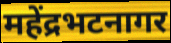
महेंद्रभटनागर